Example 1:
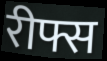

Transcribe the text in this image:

रीफ्स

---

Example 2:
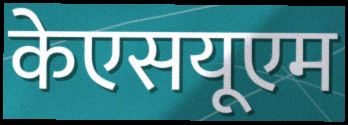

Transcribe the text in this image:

केएसयूएम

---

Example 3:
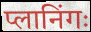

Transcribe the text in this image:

प्लानिंगः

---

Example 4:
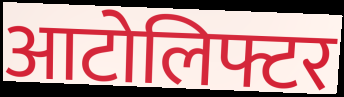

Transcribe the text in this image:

आटोलिफ्टर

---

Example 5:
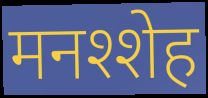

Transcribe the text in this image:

मनश्शेह